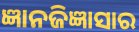
ଜ୍ଞାନଜିଜ୍ଞାସାର